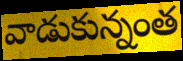
వాడుకున్నంత